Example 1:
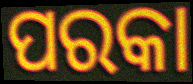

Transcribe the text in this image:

ପରକା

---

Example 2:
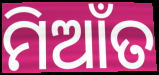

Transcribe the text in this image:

ମିଆଁତ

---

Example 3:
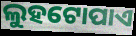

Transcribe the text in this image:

ଲୁହଟୋପାଏ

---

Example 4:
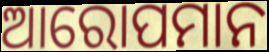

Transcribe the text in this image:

ଆରୋପମାନ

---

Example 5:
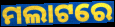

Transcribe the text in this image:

ମଲାଟରେ